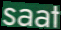
saat